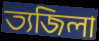
ত্যজিলা